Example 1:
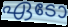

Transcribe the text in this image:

ഏടോ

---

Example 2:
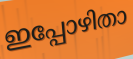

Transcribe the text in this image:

ഇപ്പോഴിതാ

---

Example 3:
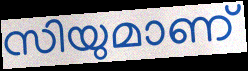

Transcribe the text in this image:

സിയുമാണ്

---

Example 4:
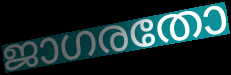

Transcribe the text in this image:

ജാഗരതോ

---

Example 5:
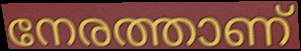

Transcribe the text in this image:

നേരത്താണ്